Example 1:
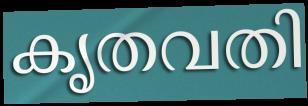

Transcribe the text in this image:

കൃതവതി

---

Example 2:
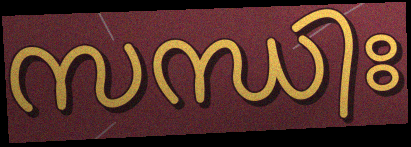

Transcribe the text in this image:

സന്ധിഃ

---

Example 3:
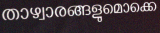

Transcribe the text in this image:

താഴ്വാരങ്ങളുമൊക്കെ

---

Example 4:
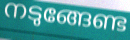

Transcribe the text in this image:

നടുങ്ങേണ്ട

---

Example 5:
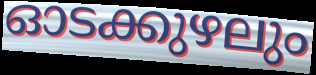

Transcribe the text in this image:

ഓടക്കുഴലും